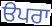
ੳਪਰਾ